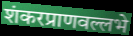
शंकरप्राणवल्लभे